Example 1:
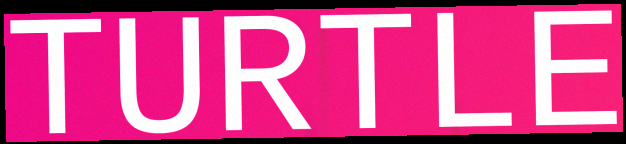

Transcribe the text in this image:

TURTLE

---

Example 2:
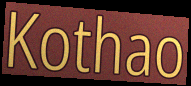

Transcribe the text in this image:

Kothao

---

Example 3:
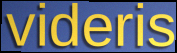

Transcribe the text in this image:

videris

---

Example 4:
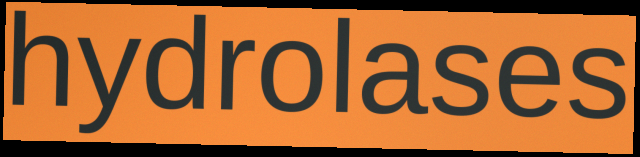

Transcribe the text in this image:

hydrolases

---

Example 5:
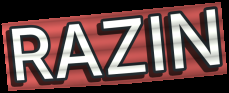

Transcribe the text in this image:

RAZIN